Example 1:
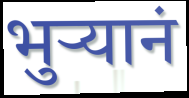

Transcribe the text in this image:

भुऱ्यानं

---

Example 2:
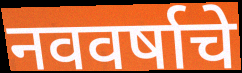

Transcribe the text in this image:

नववर्षाचे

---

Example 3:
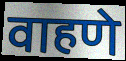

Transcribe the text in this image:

वाहणे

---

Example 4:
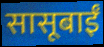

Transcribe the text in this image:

सासूबाईं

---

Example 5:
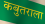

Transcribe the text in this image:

कबुतराला